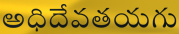
అధిదేవతయగు